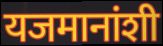
यजमानांशी